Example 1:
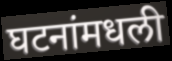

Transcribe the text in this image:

घटनांमधली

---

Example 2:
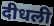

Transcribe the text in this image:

दीधली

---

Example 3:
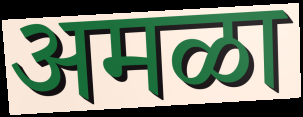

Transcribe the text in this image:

अमळा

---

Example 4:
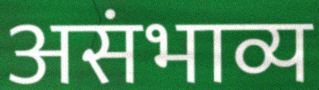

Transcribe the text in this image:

असंभाव्य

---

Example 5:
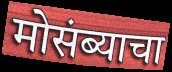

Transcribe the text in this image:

मोसंब्याचा